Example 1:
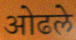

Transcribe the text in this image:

ओढले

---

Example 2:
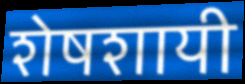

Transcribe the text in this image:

शेषशायी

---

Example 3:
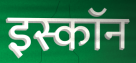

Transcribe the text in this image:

इस्कॉन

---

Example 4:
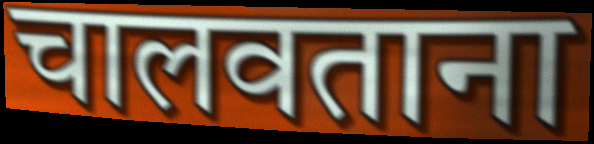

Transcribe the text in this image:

चालवताना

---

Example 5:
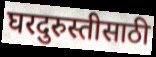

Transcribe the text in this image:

घरदुरुस्तीसाठी